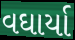
વઘાર્યા